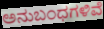
ಅನುಬಂಧಗಳಿವೆ